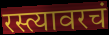
रस्त्यावरचं